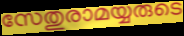
സേതുരാമയ്യരുടെ